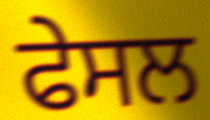
ਫੇਸਲ